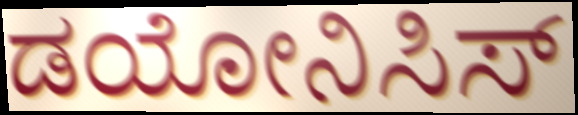
ಡಯೋನಿಸಿಸ್